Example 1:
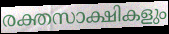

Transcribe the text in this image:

രക്തസാക്ഷികളും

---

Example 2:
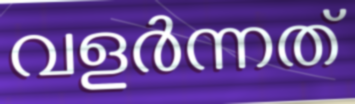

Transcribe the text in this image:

വളർന്നത്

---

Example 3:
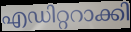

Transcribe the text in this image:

എഡിറ്ററാക്കി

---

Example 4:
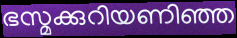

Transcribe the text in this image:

ഭസ്മക്കുറിയണിഞ്ഞ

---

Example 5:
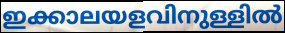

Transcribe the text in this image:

ഇക്കാലയളവിനുള്ളിൽ